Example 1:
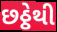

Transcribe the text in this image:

છઠ્ઠેથી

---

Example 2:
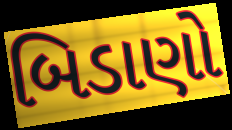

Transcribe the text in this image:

બિડાણો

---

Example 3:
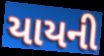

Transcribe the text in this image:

યાયની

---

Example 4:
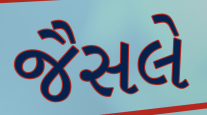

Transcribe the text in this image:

જૈસલે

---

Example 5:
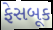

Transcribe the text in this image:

ફેસબૂક